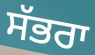
ਸੱਭਰਾ